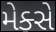
મેક્સે